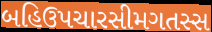
બહિઉપચારસીમગતસ્સ